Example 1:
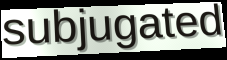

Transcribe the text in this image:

subjugated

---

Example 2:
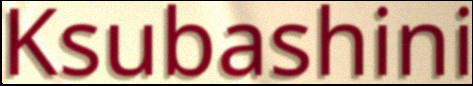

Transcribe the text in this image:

Ksubashini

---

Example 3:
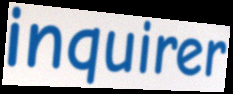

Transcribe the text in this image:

inquirer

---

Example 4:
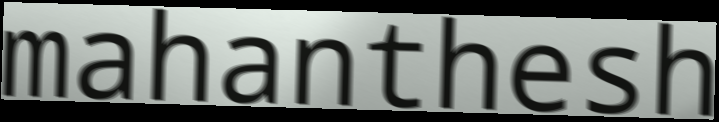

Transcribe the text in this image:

mahanthesh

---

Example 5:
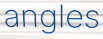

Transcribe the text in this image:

angles